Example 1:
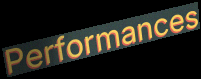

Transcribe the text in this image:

Performances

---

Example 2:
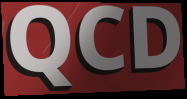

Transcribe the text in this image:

QCD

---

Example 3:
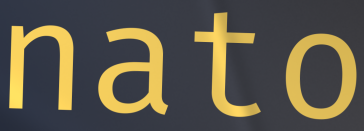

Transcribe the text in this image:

nato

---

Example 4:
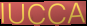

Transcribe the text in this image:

IUCCA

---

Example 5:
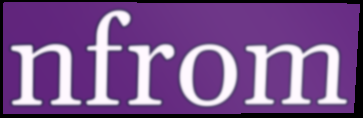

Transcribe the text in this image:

nfrom